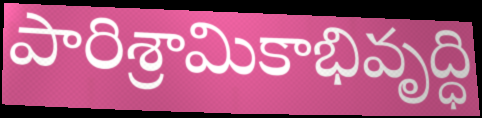
పారిశ్రామికాభివృద్ధి